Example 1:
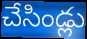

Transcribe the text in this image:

చేసిండ్లు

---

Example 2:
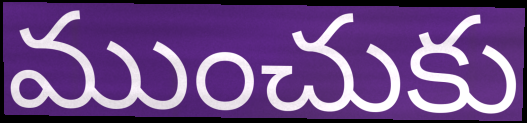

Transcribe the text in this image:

ముంచుకు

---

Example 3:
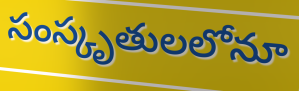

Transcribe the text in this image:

సంస్కృతులలోనూ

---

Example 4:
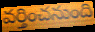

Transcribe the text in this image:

వర్తించనుంది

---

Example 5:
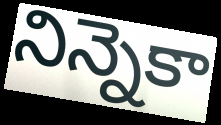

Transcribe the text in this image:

నిన్నెకా